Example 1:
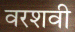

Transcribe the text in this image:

वरशवी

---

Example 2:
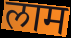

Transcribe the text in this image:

लाम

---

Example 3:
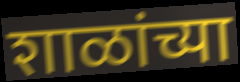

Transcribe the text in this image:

शाळांच्या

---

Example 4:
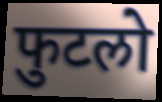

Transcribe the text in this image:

फुटलो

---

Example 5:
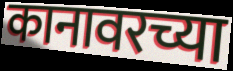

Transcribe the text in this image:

कानावरच्या